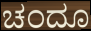
ಚಂದೂ